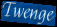
Twenge